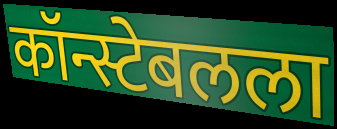
कॉन्स्टेबलला